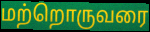
மற்றொருவரை